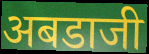
अबडाजी